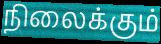
நிலைக்கும்